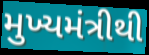
મુખ્યમંત્રીથી